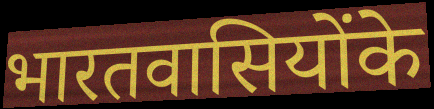
भारतवासियोंके